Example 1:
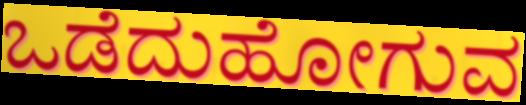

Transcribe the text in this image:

ಒಡೆದುಹೋಗುವ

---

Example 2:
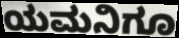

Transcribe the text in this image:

ಯಮನಿಗೂ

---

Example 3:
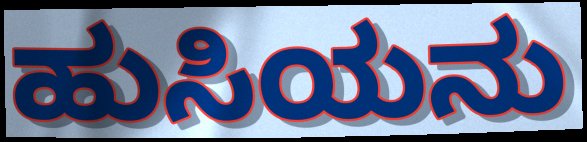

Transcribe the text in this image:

ಹುಸಿಯನು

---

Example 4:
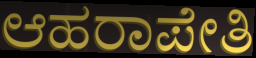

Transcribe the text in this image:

ಆಹರಾಪೇತಿ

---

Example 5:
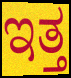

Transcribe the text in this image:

ಇತ್ತ